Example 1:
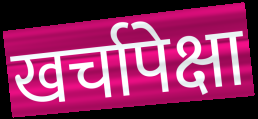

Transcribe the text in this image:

खर्चापेक्षा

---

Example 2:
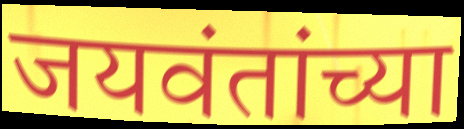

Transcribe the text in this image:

जयवंतांच्या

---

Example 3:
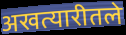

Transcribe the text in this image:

अखत्यारीतले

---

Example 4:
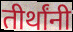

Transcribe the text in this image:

तीर्थांनी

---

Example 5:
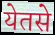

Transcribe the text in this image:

येतसे